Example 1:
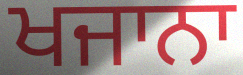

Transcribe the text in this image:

ਖਜਾਨਾ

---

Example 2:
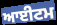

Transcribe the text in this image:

ਆਈਟਮ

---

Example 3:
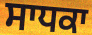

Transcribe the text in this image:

ਸਾਧਕਾ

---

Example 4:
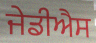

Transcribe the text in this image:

ਜੇਡੀਐਸ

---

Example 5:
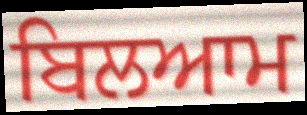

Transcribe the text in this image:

ਬਿਲਆਮ